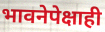
भावनेपेक्षाही